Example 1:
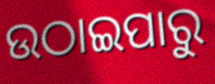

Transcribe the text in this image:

ଉଠାଇପାରୁ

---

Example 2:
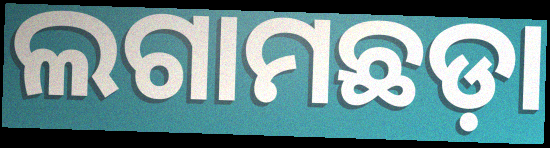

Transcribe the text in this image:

ଲଗାମଛଡ଼ା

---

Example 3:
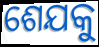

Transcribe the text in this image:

ଶେଯକୁ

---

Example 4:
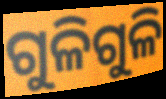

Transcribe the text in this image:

ଗୁଳିଗୁଳି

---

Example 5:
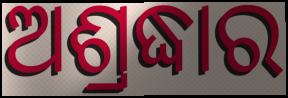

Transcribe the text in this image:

ଅଶ୍ରଦ୍ଧାର